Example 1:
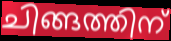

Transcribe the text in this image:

ചിങ്ങത്തിന്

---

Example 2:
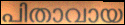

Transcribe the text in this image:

പിതാവായ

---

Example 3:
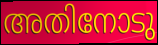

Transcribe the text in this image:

അതിനോടു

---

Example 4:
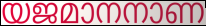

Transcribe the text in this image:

യജമാനനാണ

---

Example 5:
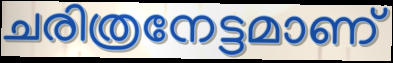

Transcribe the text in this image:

ചരിത്രനേട്ടമാണ്